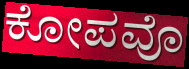
ಕೋಪವೊ